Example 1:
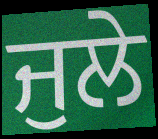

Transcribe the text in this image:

ਜੁਲੇ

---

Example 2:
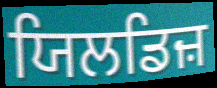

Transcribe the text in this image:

ਯਿਲਡਿਜ਼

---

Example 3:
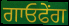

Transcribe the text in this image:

ਗਾਓਫੇਂਗ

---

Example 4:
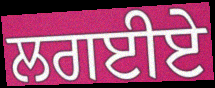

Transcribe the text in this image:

ਲਗਈਏ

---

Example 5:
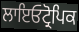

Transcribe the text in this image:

ਲਾਇਓਟ੍ਰੋਪਿਕ